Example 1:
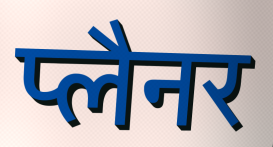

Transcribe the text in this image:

प्लैनर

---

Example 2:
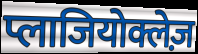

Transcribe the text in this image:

प्लाजियोक्लेज़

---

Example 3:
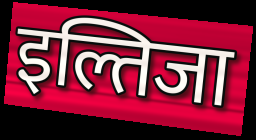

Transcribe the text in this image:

इल्तिजा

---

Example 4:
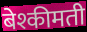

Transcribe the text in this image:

बेश्कीमती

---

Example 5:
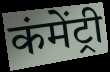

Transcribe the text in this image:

कंमेंट्री